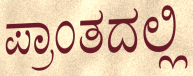
ಪ್ರಾಂತದಲ್ಲಿ